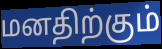
மனதிற்கும்